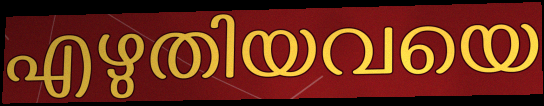
എഴുതിയവയെ